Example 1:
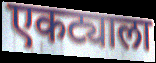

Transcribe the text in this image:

एकट्याला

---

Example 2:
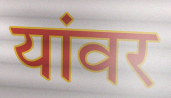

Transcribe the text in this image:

यांवर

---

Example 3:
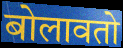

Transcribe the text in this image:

बोलावतो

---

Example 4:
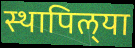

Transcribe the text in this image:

स्थापिल्या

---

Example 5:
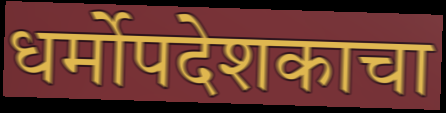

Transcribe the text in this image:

धर्मोपदेशकाचा